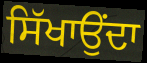
ਸਿੱਖਾਉਂਦਾ